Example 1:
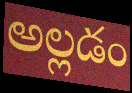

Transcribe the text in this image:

అల్లడం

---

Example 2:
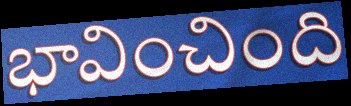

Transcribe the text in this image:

భావించింది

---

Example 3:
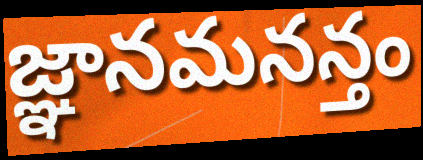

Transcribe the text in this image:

జ్ఞానమనన్తం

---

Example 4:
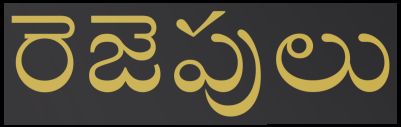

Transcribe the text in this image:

రెజెపులు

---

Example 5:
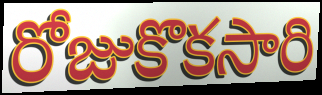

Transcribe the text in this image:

రోజుకొకసారి